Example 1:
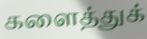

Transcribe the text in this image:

களைத்துக்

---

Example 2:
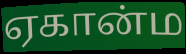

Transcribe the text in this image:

ஏகான்ம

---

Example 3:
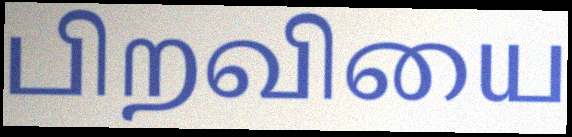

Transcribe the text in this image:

பிறவியை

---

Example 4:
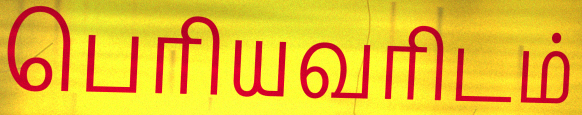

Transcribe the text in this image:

பெரியவரிடம்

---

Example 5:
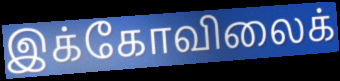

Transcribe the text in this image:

இக்கோவிலைக்